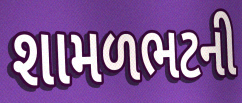
શામળભટની